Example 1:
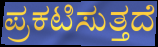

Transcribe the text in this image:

ಪ್ರಕಟಿಸುತ್ತದೆ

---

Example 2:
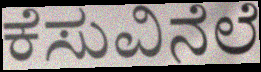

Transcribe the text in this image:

ಕೆಸುವಿನೆಲೆ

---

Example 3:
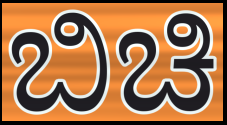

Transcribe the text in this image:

ಬಿಚಿ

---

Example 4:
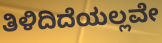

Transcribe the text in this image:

ತಿಳಿದಿದೆಯಲ್ಲವೇ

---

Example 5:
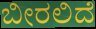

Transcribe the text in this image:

ಬೀರಲಿದೆ